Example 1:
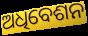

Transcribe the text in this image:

ଅଧିବେଶନ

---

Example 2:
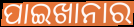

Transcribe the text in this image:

ପାଇଖାନାର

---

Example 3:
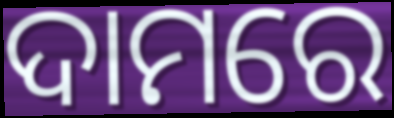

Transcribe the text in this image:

ଦାମରେ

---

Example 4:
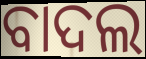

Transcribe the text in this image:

ବାଦଲ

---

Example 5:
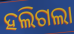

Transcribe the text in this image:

ହଲିଗଲା